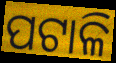
ପଟାଳି